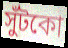
সুঁটকো